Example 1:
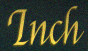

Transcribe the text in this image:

Inch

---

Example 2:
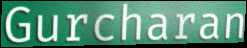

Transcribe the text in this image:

Gurcharan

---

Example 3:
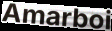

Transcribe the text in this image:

Amarboi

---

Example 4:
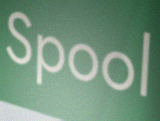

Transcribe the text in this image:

Spool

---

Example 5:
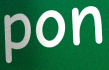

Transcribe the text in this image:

pon